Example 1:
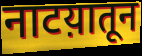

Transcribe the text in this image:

नाटय़ातून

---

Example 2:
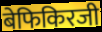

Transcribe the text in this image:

बेफिकिरजी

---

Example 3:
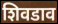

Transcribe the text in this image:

शिवडाव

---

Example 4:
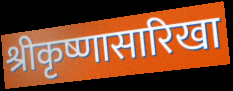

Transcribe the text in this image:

श्रीकृष्णासारिखा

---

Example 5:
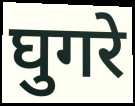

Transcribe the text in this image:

घुगरे